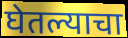
घेतल्याचा